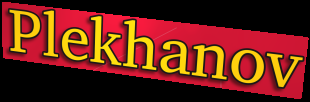
Plekhanov